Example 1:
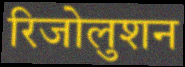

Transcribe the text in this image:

रिजोलुशन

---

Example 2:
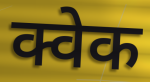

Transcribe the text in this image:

क्वेक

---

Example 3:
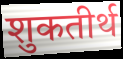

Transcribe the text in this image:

शुकतीर्थ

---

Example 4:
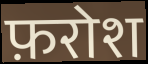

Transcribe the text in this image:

फ़रोश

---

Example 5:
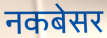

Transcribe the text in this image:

नकबेसर